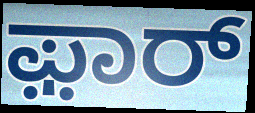
ಫ಼ಾರ್